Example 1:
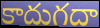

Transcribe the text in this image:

కాదుగదా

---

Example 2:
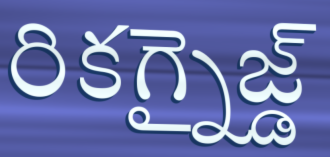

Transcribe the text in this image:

రికగ్నైజ్డ్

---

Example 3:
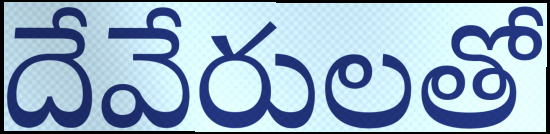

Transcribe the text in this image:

దేవేరులతో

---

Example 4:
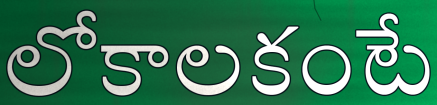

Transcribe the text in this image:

లోకాలకంటే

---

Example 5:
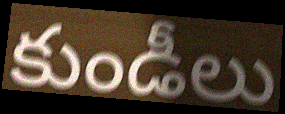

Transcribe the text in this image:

కుండీలు